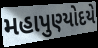
મહાપુણ્યોદયે